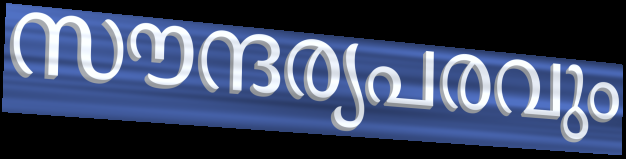
സൗന്ദര്യപരവും